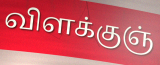
விளக்குஞ்